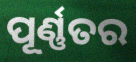
ପୂର୍ଣ୍ଣତର